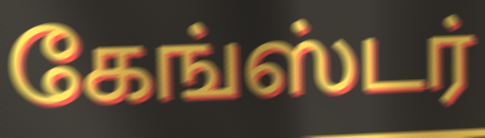
கேங்ஸ்டர்